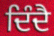
ਦਿੰਦੈ